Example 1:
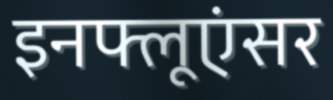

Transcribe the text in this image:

इनफ्लूएंसर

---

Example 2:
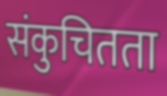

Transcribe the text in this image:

संकुचितता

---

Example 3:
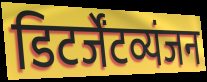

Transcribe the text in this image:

डिटर्जेंटव्यंजन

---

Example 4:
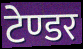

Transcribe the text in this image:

टेण्‍डर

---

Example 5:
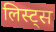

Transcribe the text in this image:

लिस्ट्स